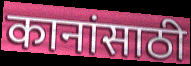
कानांसाठी